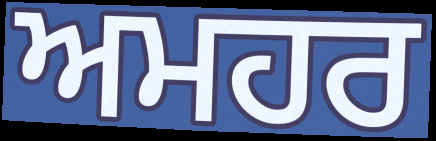
ਅਮਹਰ